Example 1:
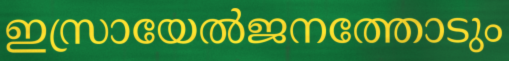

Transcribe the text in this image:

ഇസ്രായേൽജനത്തോടും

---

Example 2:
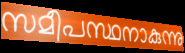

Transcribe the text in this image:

സമീപസ്ഥനാകുന്നു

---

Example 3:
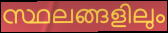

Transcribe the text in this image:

സ്ഥലങ്ങളിലും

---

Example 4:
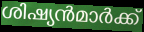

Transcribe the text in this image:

ശിഷ്യൻമാർക്ക്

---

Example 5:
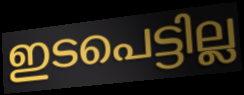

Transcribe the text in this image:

ഇടപെട്ടില്ല